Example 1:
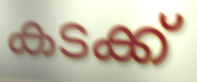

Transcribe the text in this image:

കടക്ക്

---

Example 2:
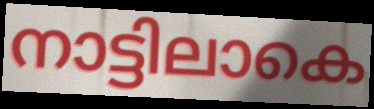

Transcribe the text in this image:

നാട്ടിലാകെ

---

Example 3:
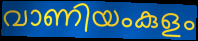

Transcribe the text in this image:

വാണിയംകുളം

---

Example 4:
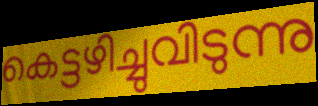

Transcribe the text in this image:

കെട്ടഴിച്ചുവിടുന്നു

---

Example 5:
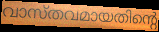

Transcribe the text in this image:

വാസ്തവമായതിന്റെ